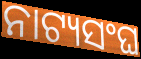
ନାଟ୍ୟସଂଘ